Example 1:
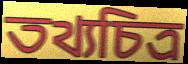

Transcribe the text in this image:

তথ্যচিত্র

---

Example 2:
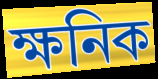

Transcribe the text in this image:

ক্ষনিক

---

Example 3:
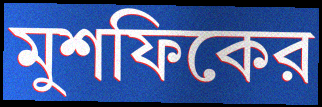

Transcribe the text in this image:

মুশফিকের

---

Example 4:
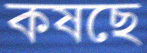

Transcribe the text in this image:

কষছে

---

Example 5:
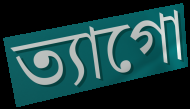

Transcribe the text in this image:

ত্যাগো